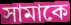
সামাকে